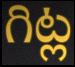
గిట్ల